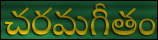
చరమగీతం